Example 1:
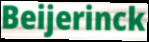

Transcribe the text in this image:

Beijerinck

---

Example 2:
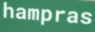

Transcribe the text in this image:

hampras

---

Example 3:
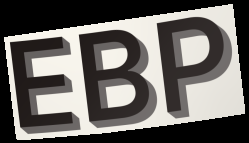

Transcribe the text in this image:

EBP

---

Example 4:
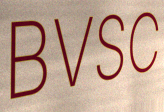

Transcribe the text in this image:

BVSC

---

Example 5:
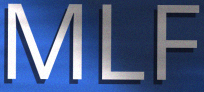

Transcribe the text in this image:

MLF